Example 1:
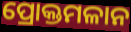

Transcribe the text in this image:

ପ୍ରୋକ୍ତମଳାନ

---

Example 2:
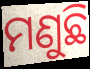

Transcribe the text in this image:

ମଣୁଛି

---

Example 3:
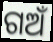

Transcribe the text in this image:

ଗଅଁ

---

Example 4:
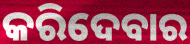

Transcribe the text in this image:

କରିଦେବାର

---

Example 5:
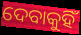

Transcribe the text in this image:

ଦେବାକୁହିଁ